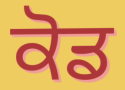
ਕੋਡ